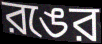
রঙের